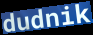
dudnik